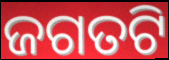
ଜଗତଟି